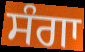
ਸੰਗਾ